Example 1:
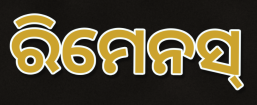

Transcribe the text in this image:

ରିମେନସ୍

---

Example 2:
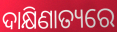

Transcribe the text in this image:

ଦାକ୍ଷିଣାତ୍ୟରେ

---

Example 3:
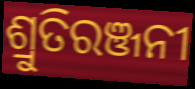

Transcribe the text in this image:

ଶ୍ରୁତିରଞ୍ଜନୀ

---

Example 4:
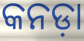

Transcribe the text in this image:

କନଡ଼ା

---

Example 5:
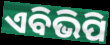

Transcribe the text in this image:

ଏବିଭିପି